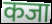
कजा